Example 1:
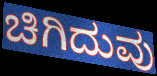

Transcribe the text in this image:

ಚಿಗಿದುವು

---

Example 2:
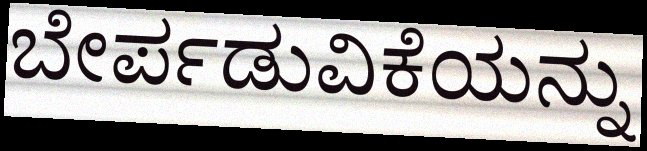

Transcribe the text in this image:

ಬೇರ್ಪಡುವಿಕೆಯನ್ನು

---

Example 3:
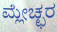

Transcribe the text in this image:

ಮ್ಲೇಚ್ಛರ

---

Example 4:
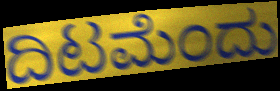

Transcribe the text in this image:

ದಿಟಮೆಂದು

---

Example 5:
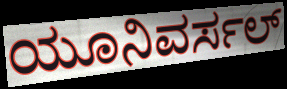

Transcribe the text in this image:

ಯೂನಿವರ್ಸಲ್